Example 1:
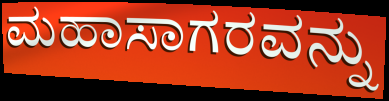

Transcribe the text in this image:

ಮಹಾಸಾಗರವನ್ನು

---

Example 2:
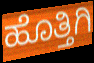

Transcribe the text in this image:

ಹೊತ್ತಿಗಿ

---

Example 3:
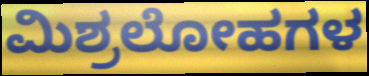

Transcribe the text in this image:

ಮಿಶ್ರಲೋಹಗಳ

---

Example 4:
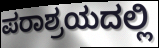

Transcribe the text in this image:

ಪರಾಶ್ರಯದಲ್ಲಿ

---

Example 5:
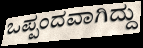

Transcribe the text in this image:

ಒಪ್ಪಂದವಾಗಿದ್ದು